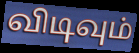
விடிவும்